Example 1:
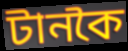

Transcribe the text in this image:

টানকৈ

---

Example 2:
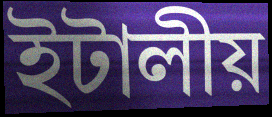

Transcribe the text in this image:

ইটালীয়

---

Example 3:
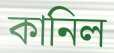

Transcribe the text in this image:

কানিল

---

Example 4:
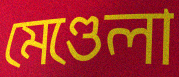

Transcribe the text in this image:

মেণ্ডেলা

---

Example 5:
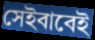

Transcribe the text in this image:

সেইবাবেই